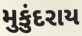
મુકુંદરાય